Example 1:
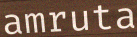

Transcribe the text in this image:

amruta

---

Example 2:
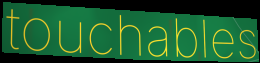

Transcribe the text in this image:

touchables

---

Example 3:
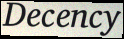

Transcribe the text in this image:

Decency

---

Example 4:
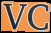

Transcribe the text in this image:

VC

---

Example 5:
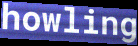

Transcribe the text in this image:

howling